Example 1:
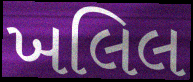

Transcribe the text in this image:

ખલિલ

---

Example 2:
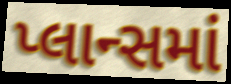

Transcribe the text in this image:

પ્લાન્સમાં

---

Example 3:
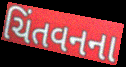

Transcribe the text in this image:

ચિંતવનના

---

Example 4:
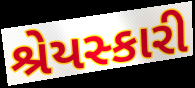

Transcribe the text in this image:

શ્રેયસ્કારી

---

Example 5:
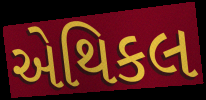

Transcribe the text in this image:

એથિકલ